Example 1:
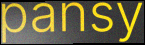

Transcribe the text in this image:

pansy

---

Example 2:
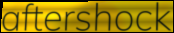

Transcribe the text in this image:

aftershock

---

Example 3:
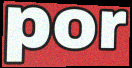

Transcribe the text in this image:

por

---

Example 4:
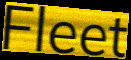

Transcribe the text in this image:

Fleet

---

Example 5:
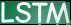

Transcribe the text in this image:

LSTM